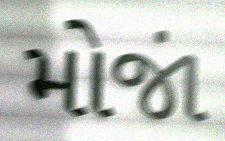
મોજાં